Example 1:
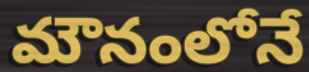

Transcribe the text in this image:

మౌనంలోనే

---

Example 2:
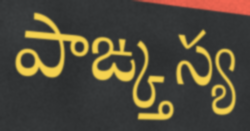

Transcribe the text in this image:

పాఙ్క్తస్య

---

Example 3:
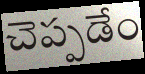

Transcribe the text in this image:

చెప్పడేం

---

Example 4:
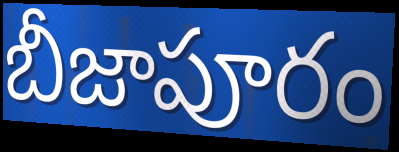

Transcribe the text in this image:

బీజాపూరం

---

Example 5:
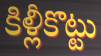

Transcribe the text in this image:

కిళ్లీకొట్టు